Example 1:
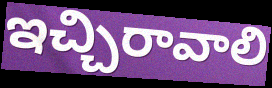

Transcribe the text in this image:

ఇచ్చిరావాలి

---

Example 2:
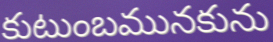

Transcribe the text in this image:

కుటుంబమునకును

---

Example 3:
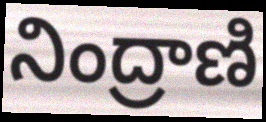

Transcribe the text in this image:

నింద్రాణి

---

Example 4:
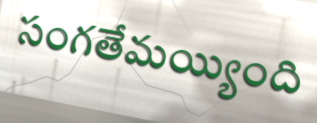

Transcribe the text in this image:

సంగతేమయ్యింది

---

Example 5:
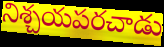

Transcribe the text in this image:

నిశ్చయపరచాడు